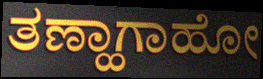
ತಣ್ಹಾಗಾಹೋ